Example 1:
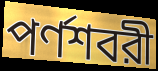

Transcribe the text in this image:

পর্ণশবরী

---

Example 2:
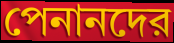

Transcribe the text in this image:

পেনানদের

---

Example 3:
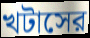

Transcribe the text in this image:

খটাসের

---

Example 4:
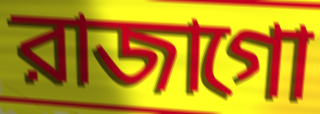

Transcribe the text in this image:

রাজাগো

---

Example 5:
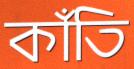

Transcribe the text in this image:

কাঁতি